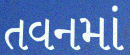
તવનમાં